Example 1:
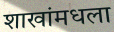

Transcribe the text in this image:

शाखांमधला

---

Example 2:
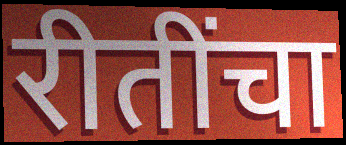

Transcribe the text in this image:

रीतींचा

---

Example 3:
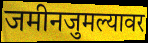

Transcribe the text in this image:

जमीनजुमल्यावर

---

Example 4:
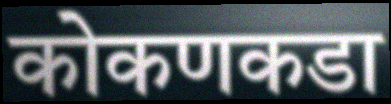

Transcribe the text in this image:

कोकणकडा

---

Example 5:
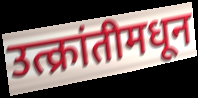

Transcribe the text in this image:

उत्क्रांतीमधून